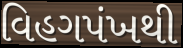
વિહગપંખથી